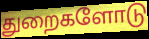
துறைகளோடு